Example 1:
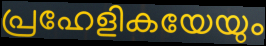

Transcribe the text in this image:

പ്രഹേളികയേയും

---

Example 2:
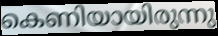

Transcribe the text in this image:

കെണിയായിരുന്നു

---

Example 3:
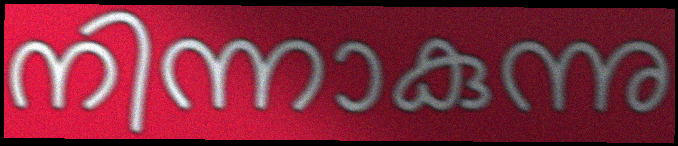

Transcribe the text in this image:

നിന്നാകുന്നു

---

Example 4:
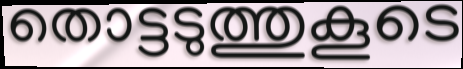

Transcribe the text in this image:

തൊട്ടടുത്തുകൂടെ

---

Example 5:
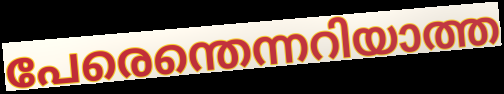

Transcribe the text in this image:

പേരെന്തെന്നറിയാത്ത